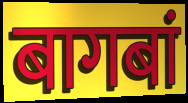
बागबां